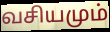
வசியமும்